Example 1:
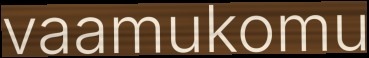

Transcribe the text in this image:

vaamukomu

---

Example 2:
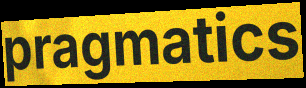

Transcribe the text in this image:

pragmatics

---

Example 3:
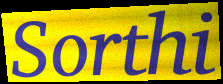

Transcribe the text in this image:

Sorthi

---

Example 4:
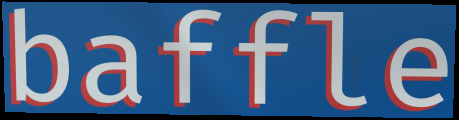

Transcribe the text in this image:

baffle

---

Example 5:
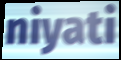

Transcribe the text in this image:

niyati